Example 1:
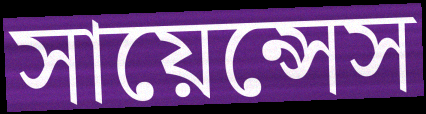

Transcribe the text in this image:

সায়েন্সেস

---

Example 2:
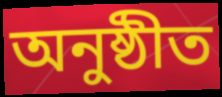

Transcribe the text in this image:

অনুষ্ঠীত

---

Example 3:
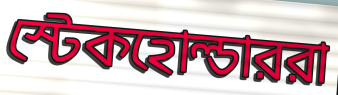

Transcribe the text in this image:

স্টেকহোল্ডাররা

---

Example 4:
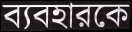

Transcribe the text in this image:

ব্যবহারকে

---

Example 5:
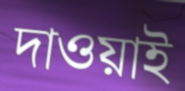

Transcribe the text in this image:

দাওয়াই